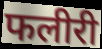
फलीरी